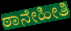
ಠಾನೇಹೀತಿ